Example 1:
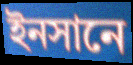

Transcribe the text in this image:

ইনসানে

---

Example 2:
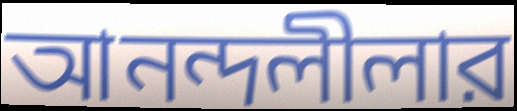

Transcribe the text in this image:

আনন্দলীলার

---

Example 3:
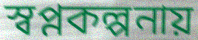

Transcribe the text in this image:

স্বপ্নকল্পনায়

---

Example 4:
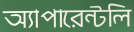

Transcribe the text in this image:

অ্যাপারেন্টলি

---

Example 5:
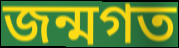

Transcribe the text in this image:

জন্মগত